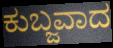
ಕುಬ್ಜವಾದ